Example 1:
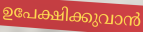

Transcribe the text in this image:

ഉപേക്ഷിക്കുവാൻ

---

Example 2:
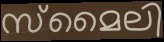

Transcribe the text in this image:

സ്മൈലി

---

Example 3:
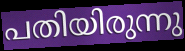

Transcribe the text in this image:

പതിയിരുന്നു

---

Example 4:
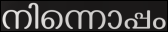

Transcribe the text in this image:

നിന്നൊപ്പം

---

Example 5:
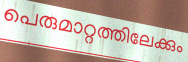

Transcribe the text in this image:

പെരുമാറ്റത്തിലേക്കും